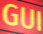
GUI